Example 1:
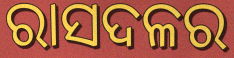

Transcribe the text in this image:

ରାସଦଳର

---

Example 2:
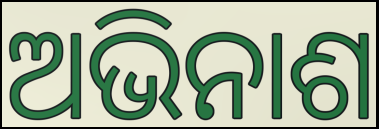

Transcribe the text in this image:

ଅଭିନାଶ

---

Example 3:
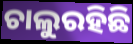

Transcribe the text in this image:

ଚାଲୁରହିଛି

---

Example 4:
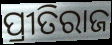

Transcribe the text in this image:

ପ୍ରୀତିରାଜ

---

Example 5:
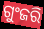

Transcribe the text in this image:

ଗୁଂଜରି